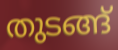
തുടങ്ങ്